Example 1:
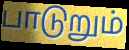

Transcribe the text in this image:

பாடுறும்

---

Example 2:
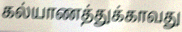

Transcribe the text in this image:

கல்யாணத்துக்காவது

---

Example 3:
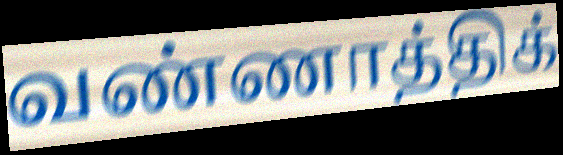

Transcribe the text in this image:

வண்ணாத்திக்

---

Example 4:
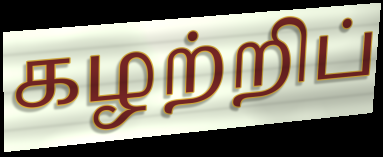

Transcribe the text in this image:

கழற்றிப்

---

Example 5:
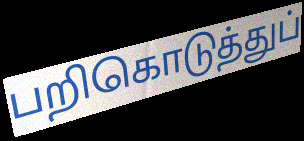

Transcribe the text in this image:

பறிகொடுத்துப்